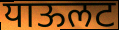
याऊलट